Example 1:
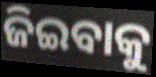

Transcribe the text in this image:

ଜିଇବାକୁ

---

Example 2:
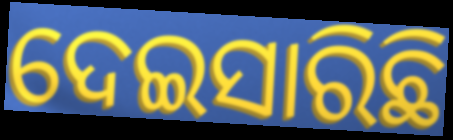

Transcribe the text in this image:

ଦେଇସାରିଛି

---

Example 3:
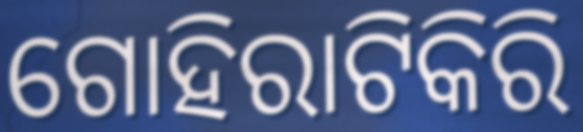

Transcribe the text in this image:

ଗୋହିରାଟିକିରି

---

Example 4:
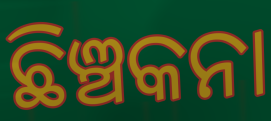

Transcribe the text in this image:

ଛିଞ୍ଚକନା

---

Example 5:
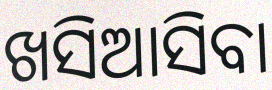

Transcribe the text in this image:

ଖସିଆସିବା